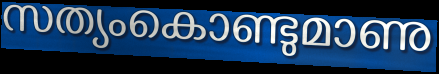
സത്യംകൊണ്ടുമാണു